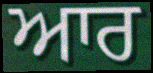
ਆਰ